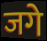
जगे